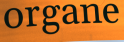
organe